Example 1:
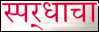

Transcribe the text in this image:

स्पर्धाचा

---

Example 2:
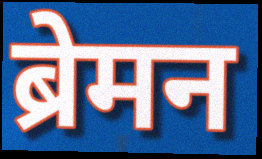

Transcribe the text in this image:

ब्रेमन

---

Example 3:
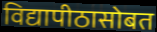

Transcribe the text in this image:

विद्यापीठासोबत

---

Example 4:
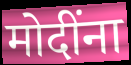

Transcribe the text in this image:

मोदींना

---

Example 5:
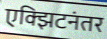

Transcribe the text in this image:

एक्झिटनंतर